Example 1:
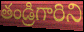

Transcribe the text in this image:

తండ్రిగారిని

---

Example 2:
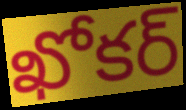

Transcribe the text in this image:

ఖోకర్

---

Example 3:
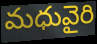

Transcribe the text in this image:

మధువైరి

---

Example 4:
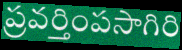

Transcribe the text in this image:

ప్రవర్తింపసాగిరి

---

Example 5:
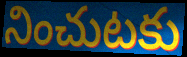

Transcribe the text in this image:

నించుటకు